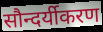
सौन्दर्यीकरण